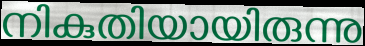
നികുതിയായിരുന്നു